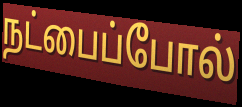
நட்பைப்போல்